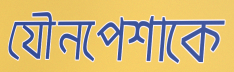
যৌনপেশাকে